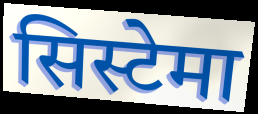
सिस्टेमा